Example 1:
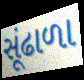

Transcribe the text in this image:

સૂંઢાળા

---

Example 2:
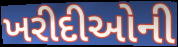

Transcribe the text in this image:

ખરીદીઓની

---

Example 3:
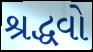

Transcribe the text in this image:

શ્રદ્ધવો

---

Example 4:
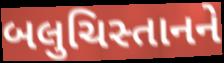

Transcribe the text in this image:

બલુચિસ્તાનને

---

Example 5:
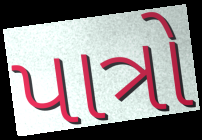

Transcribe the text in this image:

પાત્રો